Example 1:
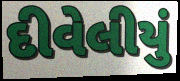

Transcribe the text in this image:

દીવેલીયું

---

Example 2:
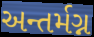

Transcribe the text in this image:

અન્તર્મગ્ન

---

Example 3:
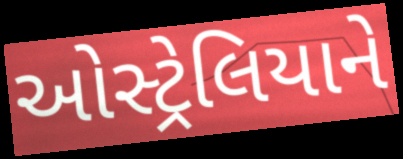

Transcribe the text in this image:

ઓસ્ટ્રેલિયાને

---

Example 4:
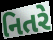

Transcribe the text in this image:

નિતરે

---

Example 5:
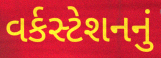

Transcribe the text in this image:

વર્કસ્ટેશનનું